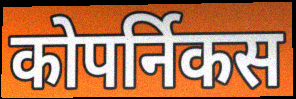
कोपर्निकस